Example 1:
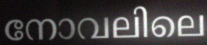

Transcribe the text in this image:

നോവലിലെ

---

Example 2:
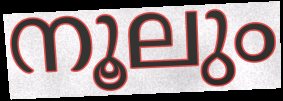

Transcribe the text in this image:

നൂലും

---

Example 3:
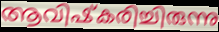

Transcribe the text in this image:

ആവിഷ്‌കരിച്ചിരുന്നു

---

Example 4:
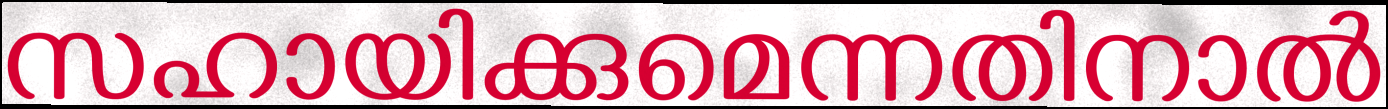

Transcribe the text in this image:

സഹായിക്കുമെന്നതിനാൽ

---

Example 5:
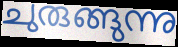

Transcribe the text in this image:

ചുരുങ്ങുന്നു